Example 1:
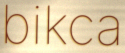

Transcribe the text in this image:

bikca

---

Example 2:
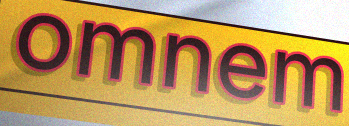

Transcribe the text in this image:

omnem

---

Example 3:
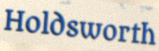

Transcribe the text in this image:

Holdsworth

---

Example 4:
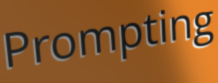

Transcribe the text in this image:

Prompting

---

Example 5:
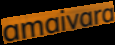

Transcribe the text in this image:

amaivara